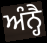
ਅੰਨ੍ਹੈ